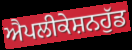
ਐਪਲੀਕੇਸ਼ਨਹੁੱਡ